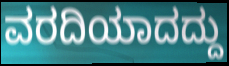
ವರದಿಯಾದದ್ದು